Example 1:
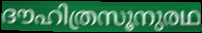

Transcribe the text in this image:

ദൗഹിത്രസൂനുരഥ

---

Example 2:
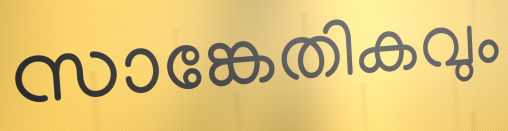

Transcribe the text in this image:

സാങ്കേതികവും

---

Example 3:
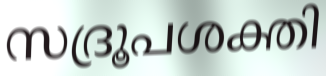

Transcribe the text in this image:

സദ്രൂപശക്തി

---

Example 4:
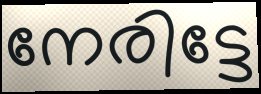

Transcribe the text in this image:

നേരിട്ടേ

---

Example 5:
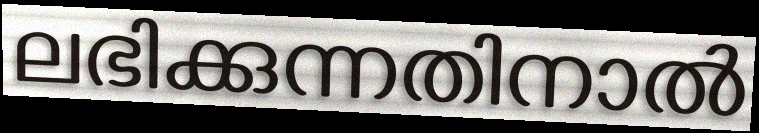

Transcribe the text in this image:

ലഭിക്കുന്നതിനാൽ